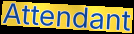
Attendant